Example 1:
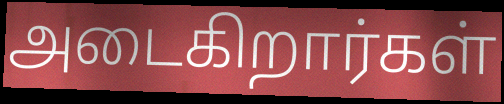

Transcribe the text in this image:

அடைகிறார்கள்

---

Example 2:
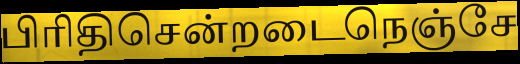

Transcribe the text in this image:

பிரிதிசென்றடைநெஞ்சே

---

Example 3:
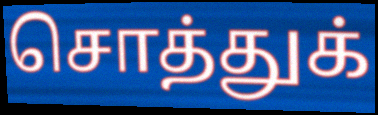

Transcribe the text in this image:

சொத்துக்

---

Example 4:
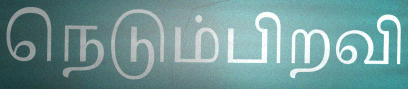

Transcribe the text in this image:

நெடும்பிறவி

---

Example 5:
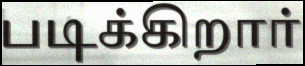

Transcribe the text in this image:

படிக்கிறார்